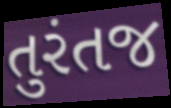
તુરંતજ